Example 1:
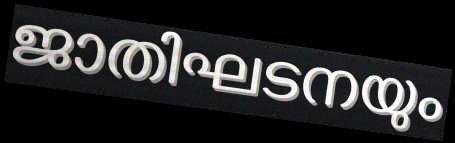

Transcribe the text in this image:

ജാതിഘടനയും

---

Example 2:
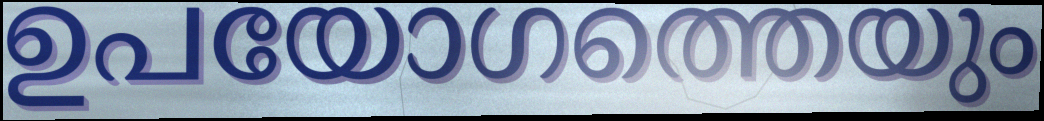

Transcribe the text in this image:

ഉപയോഗത്തെയും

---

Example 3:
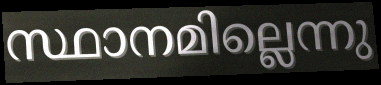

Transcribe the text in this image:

സ്ഥാനമില്ലെന്നു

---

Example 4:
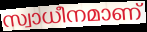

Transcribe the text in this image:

സ്വാധീനമാണ്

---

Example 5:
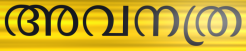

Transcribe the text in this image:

അവനത്ര